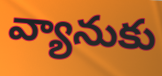
వ్యానుకు